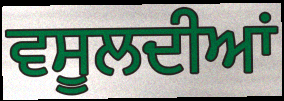
ਵਸੂਲਦੀਆਂ